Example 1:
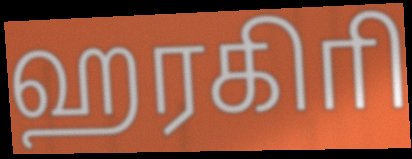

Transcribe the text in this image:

ஹரகிரி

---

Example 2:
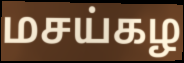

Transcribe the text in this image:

மசய்கழ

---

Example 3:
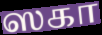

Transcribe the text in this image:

ஸகா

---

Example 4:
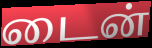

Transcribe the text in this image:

டைன்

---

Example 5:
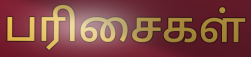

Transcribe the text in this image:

பரிசைகள்